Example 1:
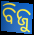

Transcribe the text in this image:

ବିଜୁ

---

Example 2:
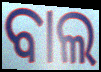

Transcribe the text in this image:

ବାଲ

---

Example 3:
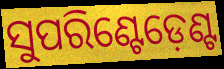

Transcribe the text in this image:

ସୁପରିଣ୍ଟେଡ଼େଣ୍ଟ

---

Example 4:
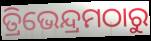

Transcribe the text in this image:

ତ୍ରିଭେନ୍ଦ୍ରମଠାରୁ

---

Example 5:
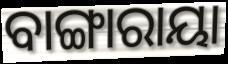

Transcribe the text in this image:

ବାଙ୍ଗାରାୟା